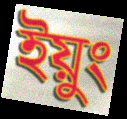
ইয়ুং